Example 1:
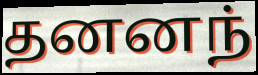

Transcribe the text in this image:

தனனந்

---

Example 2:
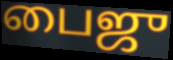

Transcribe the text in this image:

பைஜு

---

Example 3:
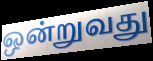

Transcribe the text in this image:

ஒன்றுவது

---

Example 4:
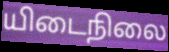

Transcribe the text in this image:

யிடைநிலை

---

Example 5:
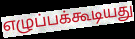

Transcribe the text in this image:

எழுப்பக்கூடியது